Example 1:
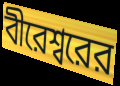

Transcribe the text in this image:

বীরেশ্বরের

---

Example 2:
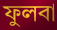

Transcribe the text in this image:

ফুলবা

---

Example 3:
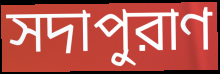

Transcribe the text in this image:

সদাপুরাণ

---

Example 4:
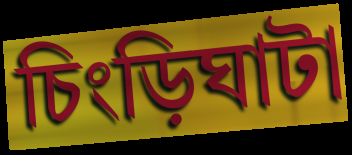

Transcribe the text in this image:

চিংড়িঘাটা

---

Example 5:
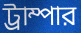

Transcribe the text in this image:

ট্রাম্পার